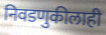
निवडणुकीलाही